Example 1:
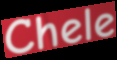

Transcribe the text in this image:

Chele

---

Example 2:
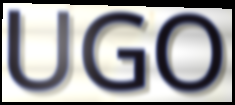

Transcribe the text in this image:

UGO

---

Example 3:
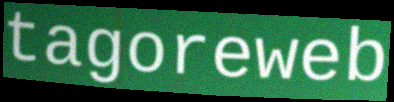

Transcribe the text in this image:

tagoreweb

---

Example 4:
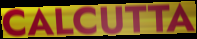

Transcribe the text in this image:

CALCUTTA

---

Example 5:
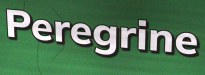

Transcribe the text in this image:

Peregrine